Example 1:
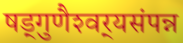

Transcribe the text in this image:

षड्‌गुणैश्वर्यसंपन्न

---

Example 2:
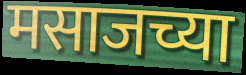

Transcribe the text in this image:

मसाजच्या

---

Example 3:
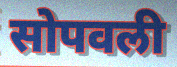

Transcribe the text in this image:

सोपवली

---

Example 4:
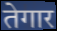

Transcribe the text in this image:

तेगार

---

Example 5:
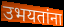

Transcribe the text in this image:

उभयतांना